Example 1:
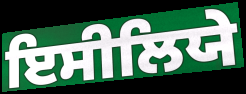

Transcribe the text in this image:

ਇਸੀਲਿਯੇ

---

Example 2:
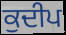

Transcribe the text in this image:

ਕੁਦੀਪ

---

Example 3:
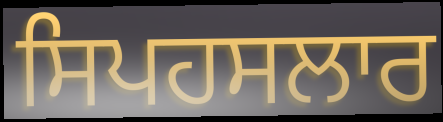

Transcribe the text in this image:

ਸਿਪਹਸਲਾਰ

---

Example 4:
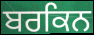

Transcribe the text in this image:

ਬਰਕਿਨ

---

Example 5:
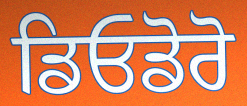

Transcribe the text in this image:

ਡਿਓਡੋਰੋ